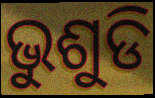
ଭୁଶୁଡି